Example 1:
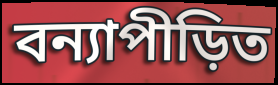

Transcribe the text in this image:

বন্যাপীড়িত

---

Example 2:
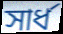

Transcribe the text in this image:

সার্ধ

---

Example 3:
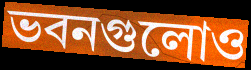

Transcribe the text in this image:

ভবনগুলোও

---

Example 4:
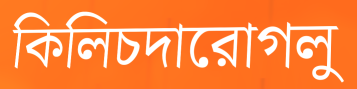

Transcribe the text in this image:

কিলিচদারোগলু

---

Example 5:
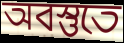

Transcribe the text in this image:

অবস্তুতে